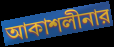
আকাশলীনার